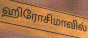
ஹிரோசிமாவில்